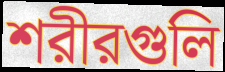
শরীরগুলি